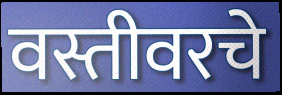
वस्तीवरचे